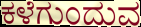
ಕಳೆಗುಂದುವ